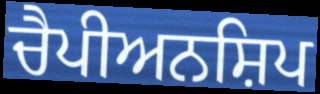
ਚੈਪੀਅਨਸ਼ਿਪ